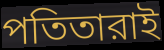
পতিতারাই